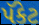
પૅકેટ